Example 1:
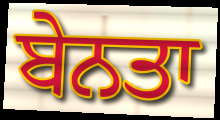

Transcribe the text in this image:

ਬੇਨਤਾ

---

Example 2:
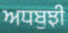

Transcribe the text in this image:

ਅਧਬੁਝੀ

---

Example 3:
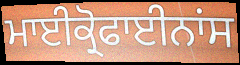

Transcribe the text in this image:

ਮਾਈਕ੍ਰੋਫਾਈਨਾਂਸ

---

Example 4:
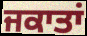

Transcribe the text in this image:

ਜਕਾਤਾਂ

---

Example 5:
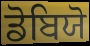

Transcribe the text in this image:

ਡੋਬਿਯੋ